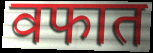
वफात